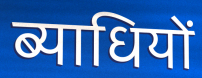
ब्याधियों